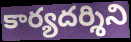
కార్యదర్శిని